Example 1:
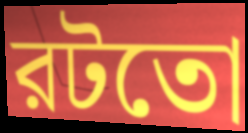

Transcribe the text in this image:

রটতো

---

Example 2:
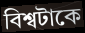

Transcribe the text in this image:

বিশ্বটাকে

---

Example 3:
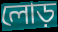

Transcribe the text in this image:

লোড়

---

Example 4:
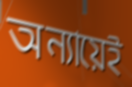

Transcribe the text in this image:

অন্যায়েই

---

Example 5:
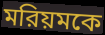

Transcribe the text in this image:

মরিয়মকে